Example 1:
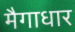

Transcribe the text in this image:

मैगाधार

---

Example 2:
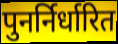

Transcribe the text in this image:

पुनर्निर्धारित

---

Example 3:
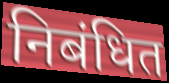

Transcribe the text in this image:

निबंधित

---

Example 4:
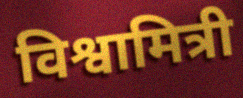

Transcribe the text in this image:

विश्वामित्री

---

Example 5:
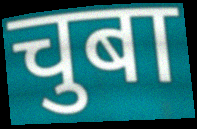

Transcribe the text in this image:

चुबा